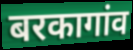
बरकागांव